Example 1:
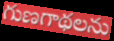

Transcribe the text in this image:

గుణగాథలను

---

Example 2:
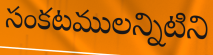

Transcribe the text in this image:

సంకటములన్నిటిని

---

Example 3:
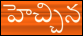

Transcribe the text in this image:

హెచ్చిన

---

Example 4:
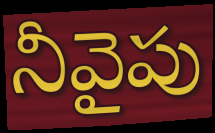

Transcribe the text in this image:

నీవైపు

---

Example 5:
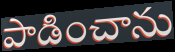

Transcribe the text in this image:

పాడించాను